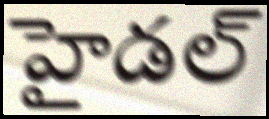
హైడల్